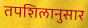
तपशिलानुसार